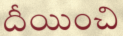
దీయించి